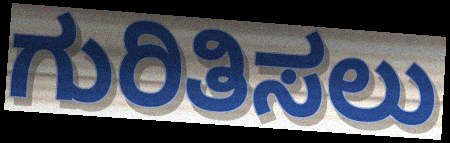
ಗುರಿತಿಸಲು